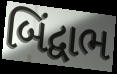
બિંદ્વાભ